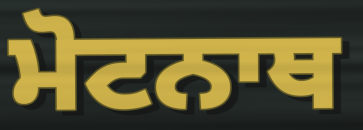
ਮੋਟਨਾਥ